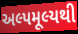
અલ્પમૂલ્યથી